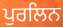
ਪੁਰਲਿਨ